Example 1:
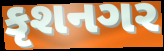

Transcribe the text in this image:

કૃશનગર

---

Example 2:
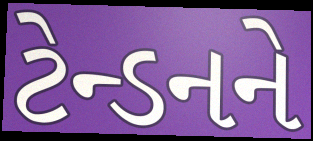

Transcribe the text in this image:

ટેન્ડનને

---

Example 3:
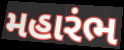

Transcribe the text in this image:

મહારંભ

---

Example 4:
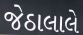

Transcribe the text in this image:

જેઠાલાલે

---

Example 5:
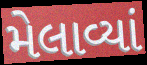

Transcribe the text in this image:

મેલાવ્યાં